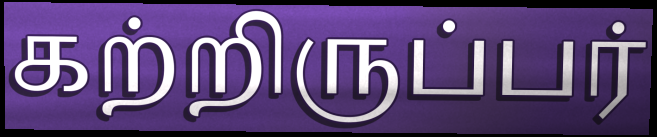
கற்றிருப்பர்